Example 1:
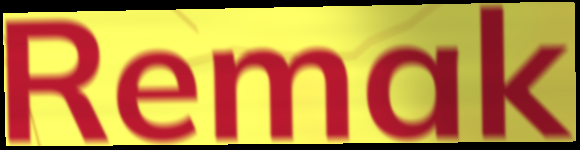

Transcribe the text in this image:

Remak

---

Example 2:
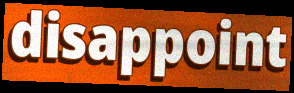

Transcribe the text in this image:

disappoint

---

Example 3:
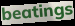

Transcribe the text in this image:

beatings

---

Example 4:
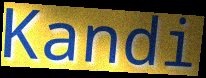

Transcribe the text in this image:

Kandi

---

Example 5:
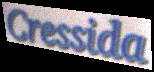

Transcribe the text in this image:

Cressida